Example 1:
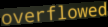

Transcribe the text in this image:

overflowed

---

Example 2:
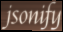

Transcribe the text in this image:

jsonify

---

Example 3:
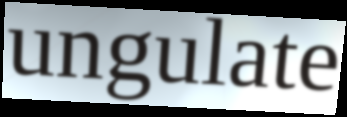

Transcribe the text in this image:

ungulate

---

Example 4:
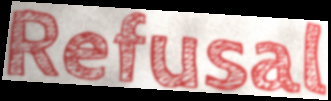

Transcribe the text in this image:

Refusal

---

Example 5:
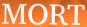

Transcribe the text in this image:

MORT